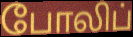
போலிப்